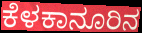
ಕೆಳಕಾನೂರಿನ